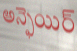
అన్ఫెయిర్